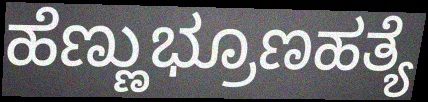
ಹೆಣ್ಣುಭ್ರೂಣಹತ್ಯೆ